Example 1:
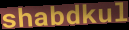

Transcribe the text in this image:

shabdkul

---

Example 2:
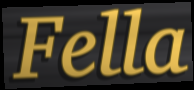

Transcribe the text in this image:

Fella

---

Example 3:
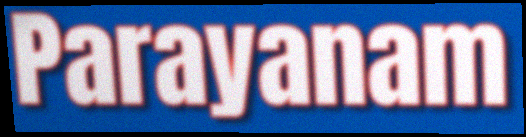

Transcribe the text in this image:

Parayanam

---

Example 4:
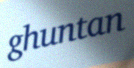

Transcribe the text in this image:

ghuntan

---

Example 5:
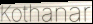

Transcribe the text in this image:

Kothanar